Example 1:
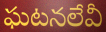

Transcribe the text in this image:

ఘటనలేవీ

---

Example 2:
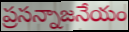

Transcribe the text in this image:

ప్రసన్నాజనేయం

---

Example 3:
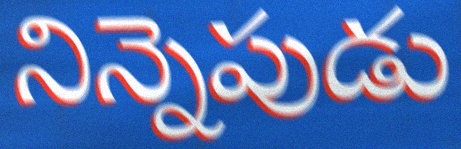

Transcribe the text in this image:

నిన్నెపుడు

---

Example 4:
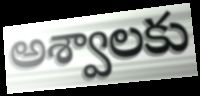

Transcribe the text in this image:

అశ్వాలకు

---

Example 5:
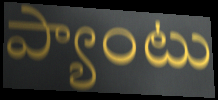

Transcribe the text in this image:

ప్యాంటు